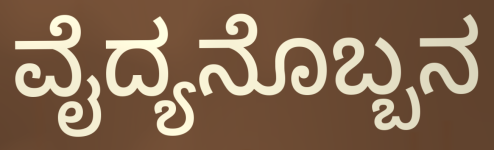
ವೈದ್ಯನೊಬ್ಬನ